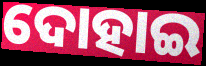
ଦୋହାଇ